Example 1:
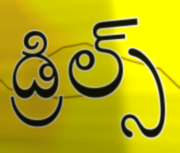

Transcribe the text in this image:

డ్రిల్స్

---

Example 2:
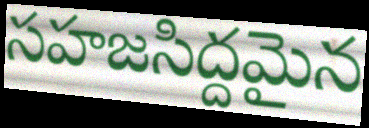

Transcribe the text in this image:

సహజసిద్దమైన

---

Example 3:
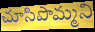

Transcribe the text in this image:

చూసిపొమ్మని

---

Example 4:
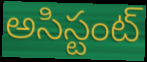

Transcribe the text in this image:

అసిస్టంట్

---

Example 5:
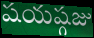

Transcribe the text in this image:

షయష్గజు